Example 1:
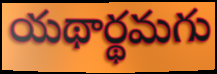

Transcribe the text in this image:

యథార్థమగు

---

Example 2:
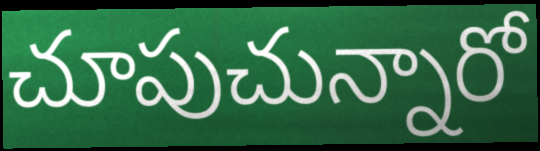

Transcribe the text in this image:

చూపుచున్నారో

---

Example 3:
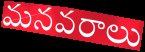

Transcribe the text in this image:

మనవరాలు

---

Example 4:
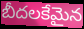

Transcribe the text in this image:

బీదలకేమైన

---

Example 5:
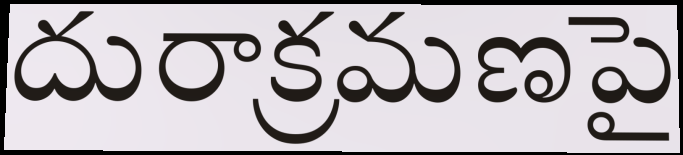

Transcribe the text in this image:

దురాక్రమణపై